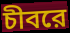
চীবরে